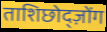
ताशिछोद्ज़ोंग